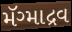
મૅગ્માદ્રવ